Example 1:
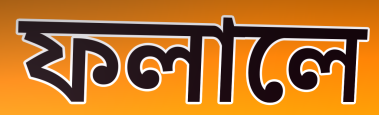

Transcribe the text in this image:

ফলালে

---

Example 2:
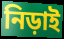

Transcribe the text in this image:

নিড়াই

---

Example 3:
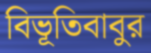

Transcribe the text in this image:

বিভূতিবাবুর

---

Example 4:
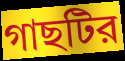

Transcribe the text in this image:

গাছটির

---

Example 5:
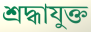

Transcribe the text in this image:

শ্রদ্ধাযুক্ত